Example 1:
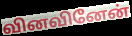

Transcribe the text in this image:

வினவினேன்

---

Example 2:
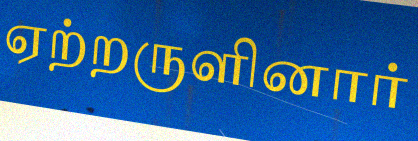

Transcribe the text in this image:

ஏற்றருளினார்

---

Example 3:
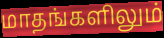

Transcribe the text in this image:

மாதங்களிலும்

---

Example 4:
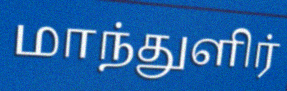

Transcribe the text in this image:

மாந்துளிர்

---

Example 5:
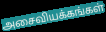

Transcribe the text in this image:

அசைவியக்கங்கள்